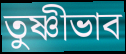
তুষ্ণীভাব